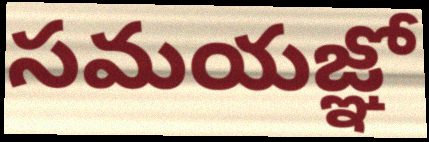
సమయజ్ఞో